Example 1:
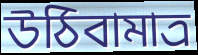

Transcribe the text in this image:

উঠিবামাত্র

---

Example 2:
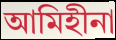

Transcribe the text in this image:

আমিহীনা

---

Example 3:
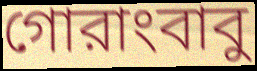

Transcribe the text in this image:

গোরাংবাবু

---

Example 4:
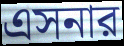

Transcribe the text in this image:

এসনার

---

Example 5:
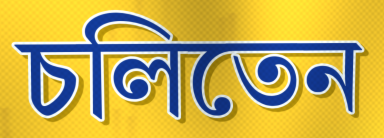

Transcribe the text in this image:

চলিতেন